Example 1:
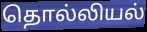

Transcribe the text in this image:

தொல்லியல்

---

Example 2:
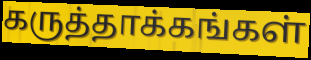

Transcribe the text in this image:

கருத்தாக்கங்கள்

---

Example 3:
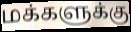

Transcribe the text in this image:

மக்களுக்கு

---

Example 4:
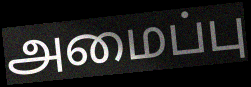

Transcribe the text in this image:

அமைப்பு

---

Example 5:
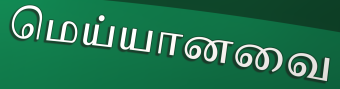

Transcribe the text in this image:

மெய்யானவை